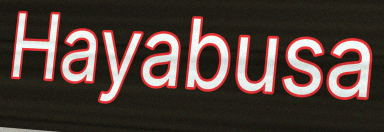
Hayabusa